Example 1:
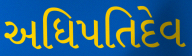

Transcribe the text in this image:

અધિપતિદેવ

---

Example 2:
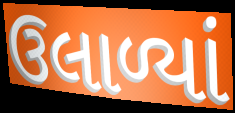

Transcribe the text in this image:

ઉલાળ્યાં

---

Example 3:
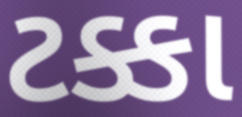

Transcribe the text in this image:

ટક્કા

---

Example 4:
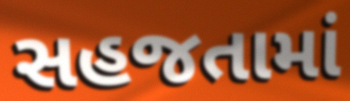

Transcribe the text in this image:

સહજતામાં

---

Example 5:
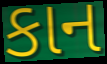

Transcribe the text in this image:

કાન